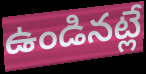
ఉండినట్లే